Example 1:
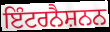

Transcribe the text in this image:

ਇੰਟਰਨੈਸ਼ਨਨ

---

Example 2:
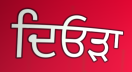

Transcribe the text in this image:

ਦਿਓੜਾ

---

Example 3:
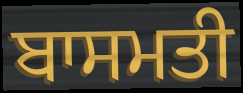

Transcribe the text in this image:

ਬਾਸਮਤੀ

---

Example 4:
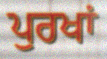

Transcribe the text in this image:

ਪੁਰਖਾਂ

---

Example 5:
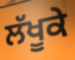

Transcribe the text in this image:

ਲੱਖੂਕੇ